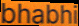
bhabhi